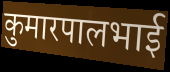
कुमारपालभाई